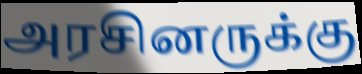
அரசினருக்கு